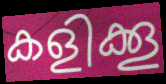
കളിക്കൂ